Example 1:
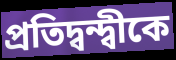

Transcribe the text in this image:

প্রতিদ্বন্দ্বীকে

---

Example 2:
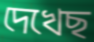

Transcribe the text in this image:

দেখেছ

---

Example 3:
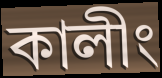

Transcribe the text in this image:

কালীং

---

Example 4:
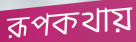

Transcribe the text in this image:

রূপকথায়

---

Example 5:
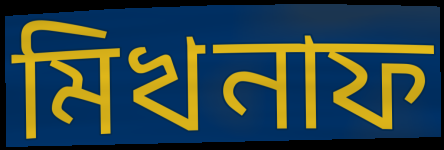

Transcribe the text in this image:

মিখনাফ